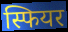
स्फियर